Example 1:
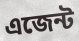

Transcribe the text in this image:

এজেন্ট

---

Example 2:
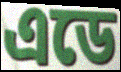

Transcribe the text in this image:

এডে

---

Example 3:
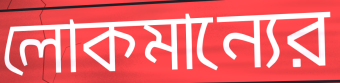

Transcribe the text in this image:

লোকমান্যের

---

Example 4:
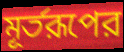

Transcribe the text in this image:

মূর্তরূপের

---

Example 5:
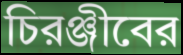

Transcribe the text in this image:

চিরঞ্জীবের